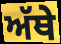
ਅੱਥੇ